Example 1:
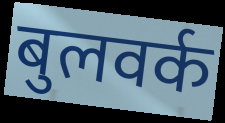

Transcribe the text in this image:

बुलवर्क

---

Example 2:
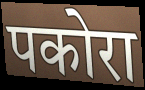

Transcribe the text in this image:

पकोरा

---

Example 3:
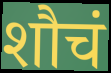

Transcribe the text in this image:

शौचं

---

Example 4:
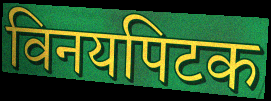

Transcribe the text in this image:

विनयपिटक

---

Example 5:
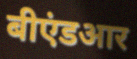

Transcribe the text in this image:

बीएंडआर